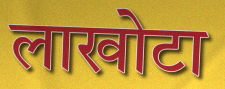
लाखोटा